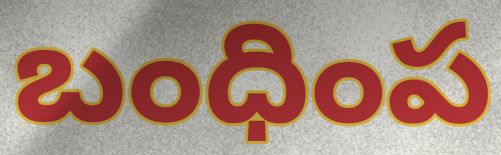
బంధింప